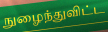
நுழைந்துவிட்ட